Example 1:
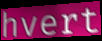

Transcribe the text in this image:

hvert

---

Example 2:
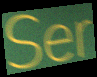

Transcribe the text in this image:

Ser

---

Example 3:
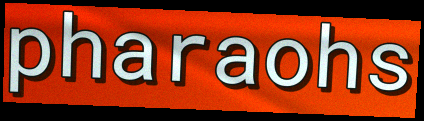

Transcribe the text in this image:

pharaohs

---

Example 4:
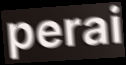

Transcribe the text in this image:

perai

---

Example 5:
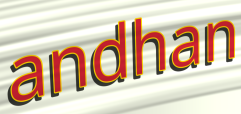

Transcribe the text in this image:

andhan